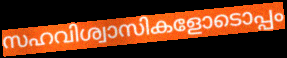
സഹവിശ്വാസികളോടൊപ്പം